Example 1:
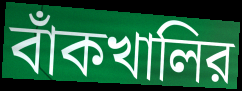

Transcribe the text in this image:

বাঁকখালির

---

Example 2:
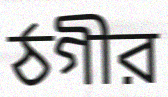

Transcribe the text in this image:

ঠগীর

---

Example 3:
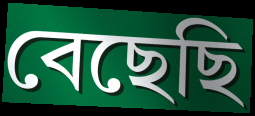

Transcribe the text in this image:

বেছেছি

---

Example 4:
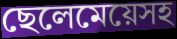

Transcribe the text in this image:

ছেলেমেয়েসহ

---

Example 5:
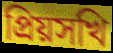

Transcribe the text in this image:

প্রিয়সখি